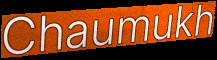
Chaumukh